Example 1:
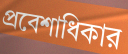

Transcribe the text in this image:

প্রবেশাধিকার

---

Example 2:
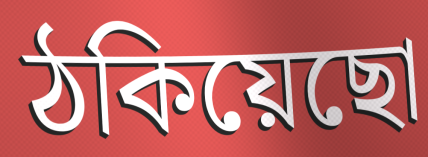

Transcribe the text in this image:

ঠকিয়েছো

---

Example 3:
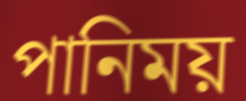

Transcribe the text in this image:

পানিময়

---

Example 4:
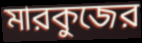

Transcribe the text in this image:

মারকুজের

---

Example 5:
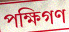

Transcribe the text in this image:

পক্ষিগণ